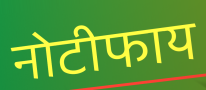
नोटीफाय